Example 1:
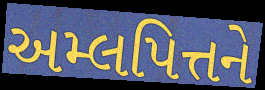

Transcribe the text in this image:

અમ્લપિત્તને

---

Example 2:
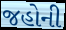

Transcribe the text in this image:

જહોની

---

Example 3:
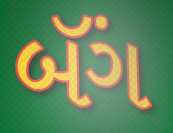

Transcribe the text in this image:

બૅંગ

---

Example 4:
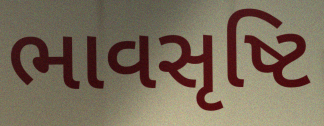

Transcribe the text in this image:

ભાવસૃષ્ટિ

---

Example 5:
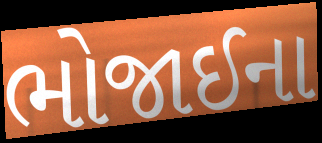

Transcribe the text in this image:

ભોજાઈના